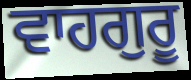
ਵਾਹਗੁਰੂ